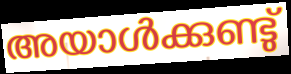
അയാൾക്കുണ്ടു്